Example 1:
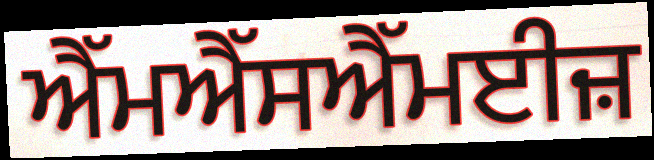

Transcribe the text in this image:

ਐੱਮਐੱਸਐੱਮਈਜ਼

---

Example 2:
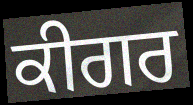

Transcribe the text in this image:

ਕੀਗਰ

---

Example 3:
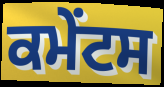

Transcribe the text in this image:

ਕਮੇੰਟਸ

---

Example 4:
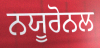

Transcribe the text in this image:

ਨਯੂਰੋਨਲ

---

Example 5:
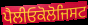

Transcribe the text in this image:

ਪੈਲੀਓਕੋਲੋਜਿਸਟ